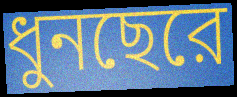
ধুনছেরে